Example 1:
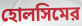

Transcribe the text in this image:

হোলসিমের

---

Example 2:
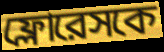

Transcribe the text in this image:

ফ্লোরেসকে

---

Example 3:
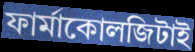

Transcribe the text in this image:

ফার্মাকোলজিটাই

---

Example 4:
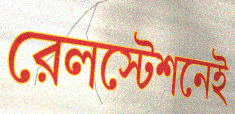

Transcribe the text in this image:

রেলস্টেশনেই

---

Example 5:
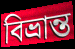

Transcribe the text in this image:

বিভ্রান্ত